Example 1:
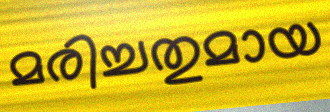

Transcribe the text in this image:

മരിച്ചതുമായ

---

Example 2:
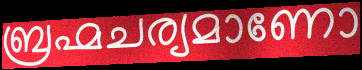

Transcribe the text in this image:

ബ്രഹ്മചര്യമാണോ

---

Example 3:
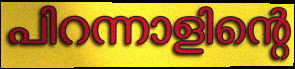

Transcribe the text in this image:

പിറന്നാളിന്റെ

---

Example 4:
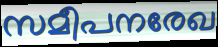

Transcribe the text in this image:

സമീപനരേഖ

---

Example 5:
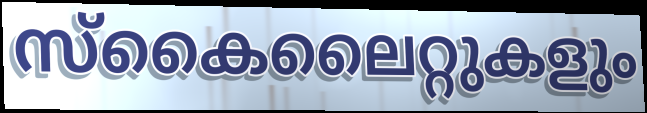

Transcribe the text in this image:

സ്കൈലൈറ്റുകളും